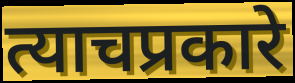
त्याचप्रकारे